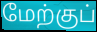
மேற்குப்